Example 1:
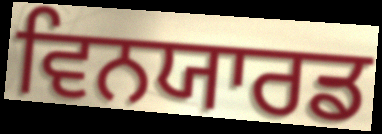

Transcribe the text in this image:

ਵਿਨਯਾਰਡ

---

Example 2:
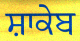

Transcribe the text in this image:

ਸ਼ਾਕੇਬ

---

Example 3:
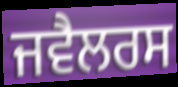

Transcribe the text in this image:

ਜਵੈਲਰਸ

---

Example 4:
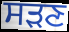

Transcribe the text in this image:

ਸੜਣ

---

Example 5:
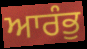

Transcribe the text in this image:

ਆਰੰਭੁ